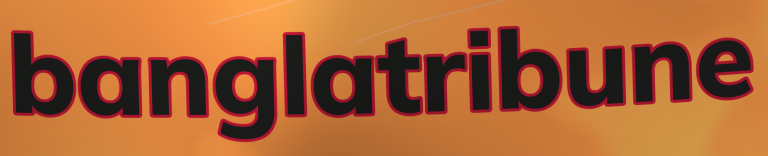
banglatribune